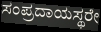
ಸಂಪ್ರದಾಯಸ್ಥರೇ